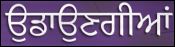
ਉਡਾਉਣਗੀਆਂ